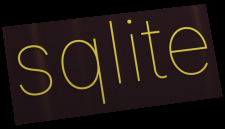
sqlite